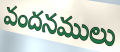
వందనములు